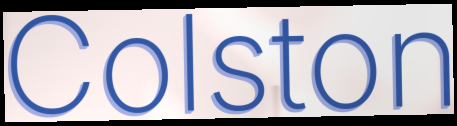
Colston